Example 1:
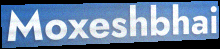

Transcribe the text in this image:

Moxeshbhai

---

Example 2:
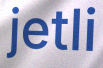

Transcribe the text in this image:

jetli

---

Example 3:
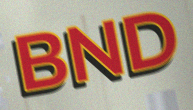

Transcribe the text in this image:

BND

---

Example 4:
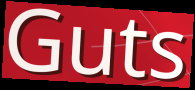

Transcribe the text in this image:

Guts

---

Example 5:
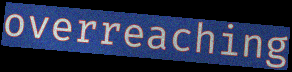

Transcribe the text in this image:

overreaching